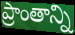
ప్రాంతాన్ని